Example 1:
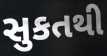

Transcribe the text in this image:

સુકતથી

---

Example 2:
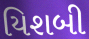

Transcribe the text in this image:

યિશબી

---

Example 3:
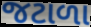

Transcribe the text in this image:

જટાળા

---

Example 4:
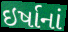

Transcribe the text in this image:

ઇર્ષાનાં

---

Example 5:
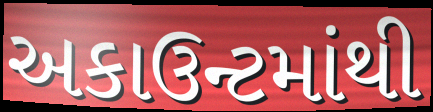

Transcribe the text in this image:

અકાઉન્ટમાંથી